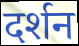
दर्शन